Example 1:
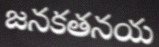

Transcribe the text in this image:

జనకతనయ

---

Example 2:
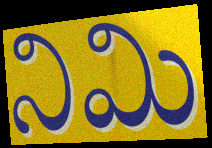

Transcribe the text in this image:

నిమి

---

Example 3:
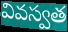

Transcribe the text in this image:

వివస్వత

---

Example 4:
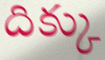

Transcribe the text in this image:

దిక్కు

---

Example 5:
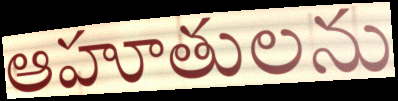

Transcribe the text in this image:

ఆహూతులను